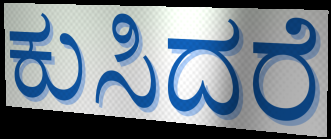
ಕುಸಿದರೆ